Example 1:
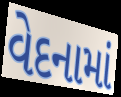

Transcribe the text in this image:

વેદનામાં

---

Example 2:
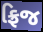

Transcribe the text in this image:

ફ્રિજ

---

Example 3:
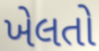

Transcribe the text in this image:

ખેલતો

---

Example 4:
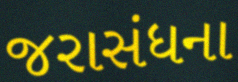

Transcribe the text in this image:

જરાસંધના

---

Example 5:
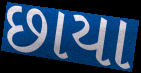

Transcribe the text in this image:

છાયા